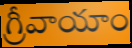
గ్రీవాయాం